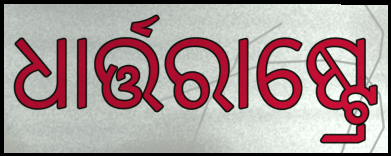
ଧାର୍ତ୍ତରାଷ୍ଟ୍ରେ